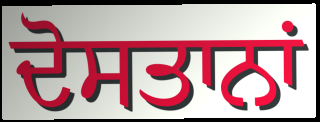
ਦੋਸਤਾਨਾਂ